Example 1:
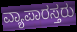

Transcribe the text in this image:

ವ್ಯಾಪಾರಸ್ತರು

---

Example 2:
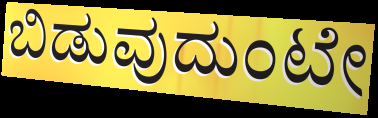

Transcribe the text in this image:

ಬಿಡುವುದುಂಟೇ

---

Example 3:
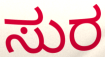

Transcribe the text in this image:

ಸುರ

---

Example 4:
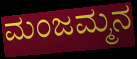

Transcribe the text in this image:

ಮಂಜಮ್ಮನ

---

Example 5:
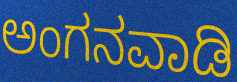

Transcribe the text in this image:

ಅಂಗನವಾಡಿ